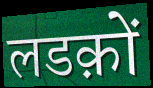
लडक़ों